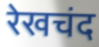
रेखचंद